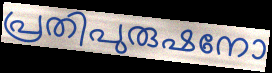
പ്രതിപുരുഷനോ